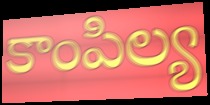
కాంపిల్య